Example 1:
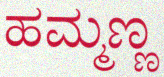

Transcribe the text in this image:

ಹಮ್ಮಣ್ಣ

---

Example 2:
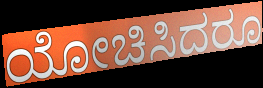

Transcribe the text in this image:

ಯೋಚಿಸಿದರೂ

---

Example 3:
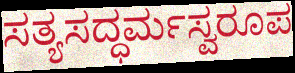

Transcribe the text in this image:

ಸತ್ಯಸದ್ಧರ್ಮಸ್ವರೂಪ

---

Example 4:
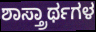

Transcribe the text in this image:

ಶಾಸ್ತ್ರಾರ್ಥಗಳ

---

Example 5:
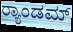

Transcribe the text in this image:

ರ್‍ಯಾಂಡಮ್